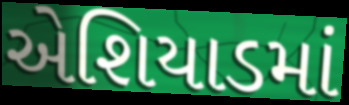
એશિયાડમાં